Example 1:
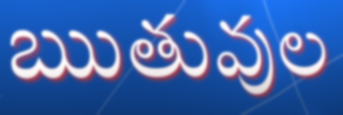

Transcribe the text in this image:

ఋతువుల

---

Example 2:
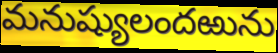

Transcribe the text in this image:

మనుష్యులందఱును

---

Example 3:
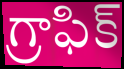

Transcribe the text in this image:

గ్రాఫిక్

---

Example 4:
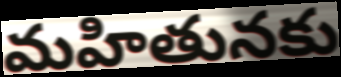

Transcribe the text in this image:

మహితునకు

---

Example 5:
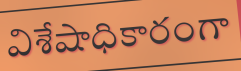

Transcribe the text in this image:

విశేషాధికారంగా